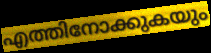
എത്തിനോക്കുകയും